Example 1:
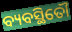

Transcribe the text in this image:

ବ୍ୟବସ୍ଥିତୌ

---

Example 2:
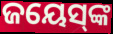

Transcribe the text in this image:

ଜୟେସ୍‌ଙ୍କ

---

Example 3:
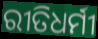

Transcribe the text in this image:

ରୀତିଧର୍ମୀ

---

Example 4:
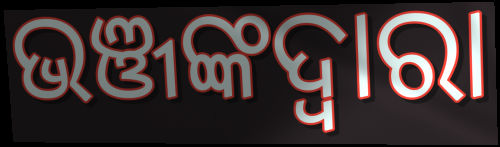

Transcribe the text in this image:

ଭଞ୍ଜଙ୍କଦ୍ୱାରା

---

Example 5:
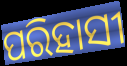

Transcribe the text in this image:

ପରିହାସୀ